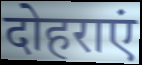
दोहराएं